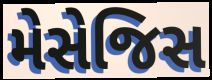
મેસેજિસ